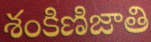
శంకిణిజాతి